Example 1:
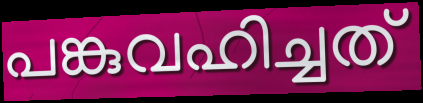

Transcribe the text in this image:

പങ്കുവഹിച്ചത്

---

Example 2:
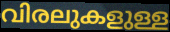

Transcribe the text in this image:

വിരലുകളുള്ള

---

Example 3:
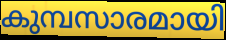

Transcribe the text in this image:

കുമ്പസാരമായി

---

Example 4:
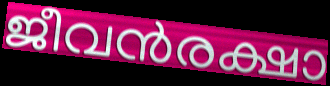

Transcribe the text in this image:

ജീവൻരക്ഷാ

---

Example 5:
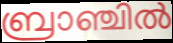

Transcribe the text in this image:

ബ്രാഞ്ചിൽ